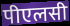
पीएलसी